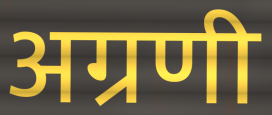
अग्रणी